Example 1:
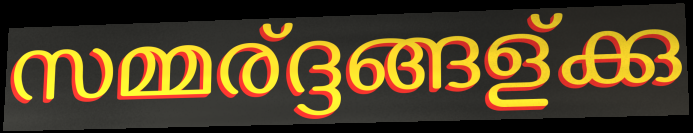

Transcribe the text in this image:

സമ്മര്ദ്ദങ്ങള്ക്കു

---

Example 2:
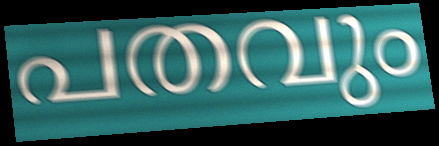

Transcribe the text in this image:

പതവും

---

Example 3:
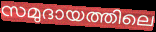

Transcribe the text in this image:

സമുദായത്തിലെ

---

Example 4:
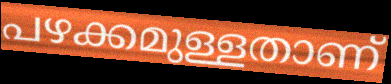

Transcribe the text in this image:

പഴക്കമുള്ളതാണ്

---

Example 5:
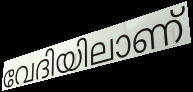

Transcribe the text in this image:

വേദിയിലാണ്